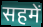
सहमें